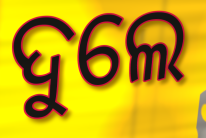
ଦୁଲେ